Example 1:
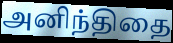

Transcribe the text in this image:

அனிந்திதை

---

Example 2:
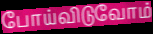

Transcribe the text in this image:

போய்விடுவோம்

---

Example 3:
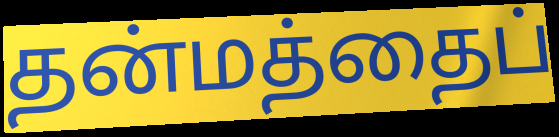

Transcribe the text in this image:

தன்மத்தைப்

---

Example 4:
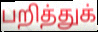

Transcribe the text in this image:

பறித்துக்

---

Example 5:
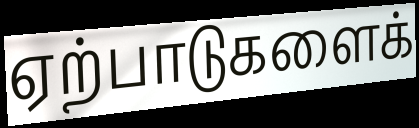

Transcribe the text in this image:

ஏற்பாடுகளைக்